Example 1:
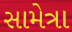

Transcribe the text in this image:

સામેત્રા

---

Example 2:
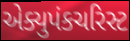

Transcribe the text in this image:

એક્યુપંકચરિસ્ટ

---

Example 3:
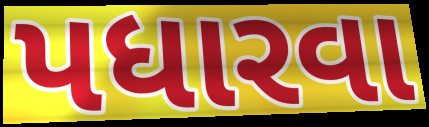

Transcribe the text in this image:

પધારવા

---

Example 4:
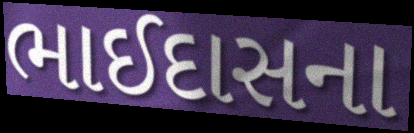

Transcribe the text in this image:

ભાઈદાસના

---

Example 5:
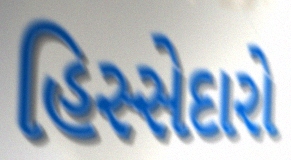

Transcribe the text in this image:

હિસ્સેદારો